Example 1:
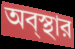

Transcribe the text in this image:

অব্স্থার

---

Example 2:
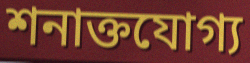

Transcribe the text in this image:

শনাক্তযোগ্য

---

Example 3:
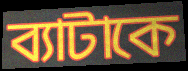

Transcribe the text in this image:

ব্যাটাকে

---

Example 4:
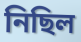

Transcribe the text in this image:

নিছিল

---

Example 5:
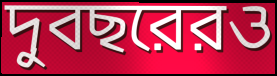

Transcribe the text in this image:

দুবছরেরও